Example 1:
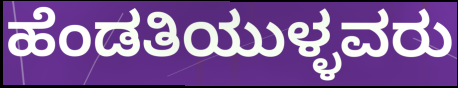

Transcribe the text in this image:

ಹೆಂಡತಿಯುಳ್ಳವರು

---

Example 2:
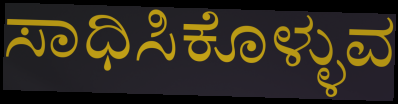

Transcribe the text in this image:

ಸಾಧಿಸಿಕೊಳ್ಳುವ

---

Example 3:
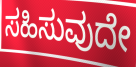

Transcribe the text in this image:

ಸಹಿಸುವುದೇ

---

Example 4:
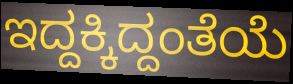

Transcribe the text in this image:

ಇದ್ದಕ್ಕಿದ್ದಂತೆಯೆ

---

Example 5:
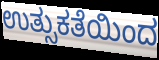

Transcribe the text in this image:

ಉತ್ಸುಕತೆಯಿಂದ